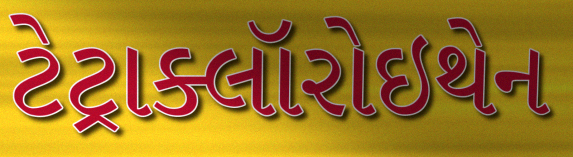
ટેટ્રાક્લૉરોઇથેન